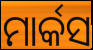
ମାର୍କସ